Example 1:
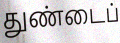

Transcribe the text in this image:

துண்டைப்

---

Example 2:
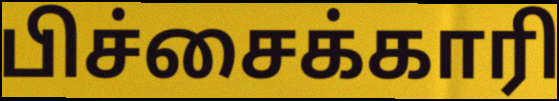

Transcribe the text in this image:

பிச்சைக்காரி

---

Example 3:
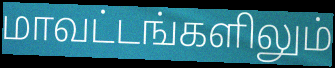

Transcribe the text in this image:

மாவட்டங்களிலும்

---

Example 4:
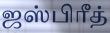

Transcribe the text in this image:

ஜஸ்பிரீத்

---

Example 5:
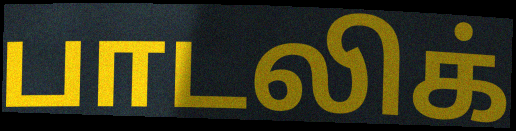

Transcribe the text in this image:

பாடலிக்